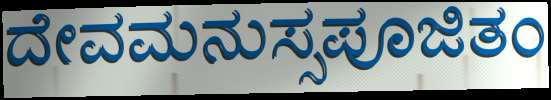
ದೇವಮನುಸ್ಸಪೂಜಿತಂ